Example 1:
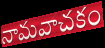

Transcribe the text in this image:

నామవాచకం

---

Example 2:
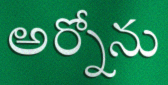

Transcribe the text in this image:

అర్నోను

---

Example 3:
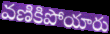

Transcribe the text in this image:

వణికిపోయారు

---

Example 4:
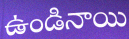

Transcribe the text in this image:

ఉండినాయి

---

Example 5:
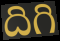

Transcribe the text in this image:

దిగి